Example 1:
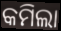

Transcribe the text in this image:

କମିଲା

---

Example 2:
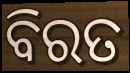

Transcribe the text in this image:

ବିରତ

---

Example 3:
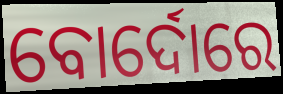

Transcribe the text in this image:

ବୋର୍ଦୋରେ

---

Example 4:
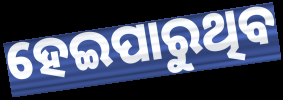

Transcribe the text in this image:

ହେଇପାରୁଥିବ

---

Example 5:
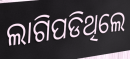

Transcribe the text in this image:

ଲାଗିପଡିଥିଲେ